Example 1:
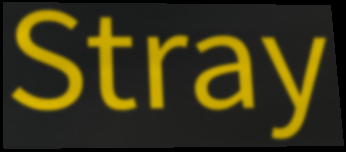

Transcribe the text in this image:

Stray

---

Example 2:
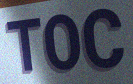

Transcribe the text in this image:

TOC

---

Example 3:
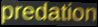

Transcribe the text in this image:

predation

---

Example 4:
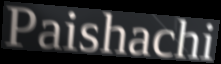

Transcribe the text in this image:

Paishachi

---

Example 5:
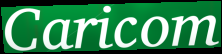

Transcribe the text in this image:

Caricom